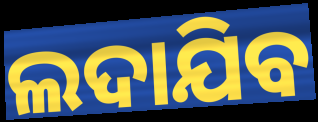
ଲଦାଯିବ